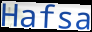
Hafsa